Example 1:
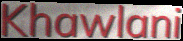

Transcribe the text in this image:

Khawlani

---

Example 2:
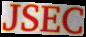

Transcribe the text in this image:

JSEC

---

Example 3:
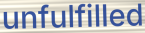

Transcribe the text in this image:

unfulfilled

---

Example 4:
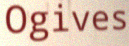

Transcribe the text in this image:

Ogives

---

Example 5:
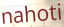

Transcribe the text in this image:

nahoti